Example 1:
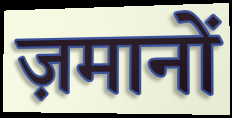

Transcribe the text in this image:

ज़मानों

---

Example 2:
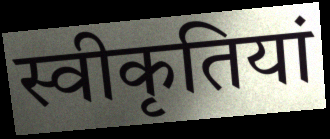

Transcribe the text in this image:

स्वीकृतियां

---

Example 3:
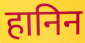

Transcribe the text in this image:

हानिन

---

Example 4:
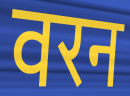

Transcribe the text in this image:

वरन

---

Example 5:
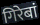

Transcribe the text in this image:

गिरेबां